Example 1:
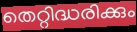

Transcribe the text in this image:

തെറ്റിദ്ധരിക്കും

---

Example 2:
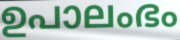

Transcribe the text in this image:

ഉപാലംഭം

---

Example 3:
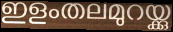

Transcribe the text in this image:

ഇളംതലമുറയ്ക്കു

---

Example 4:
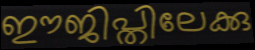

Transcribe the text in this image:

ഈജിപ്തിലേക്കു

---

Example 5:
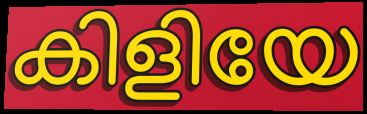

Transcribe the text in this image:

കിളിയേ